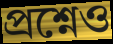
প্রশ্নেও